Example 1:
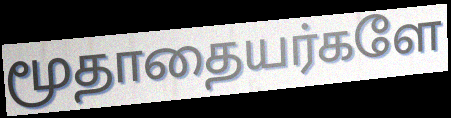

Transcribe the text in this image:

மூதாதையர்களே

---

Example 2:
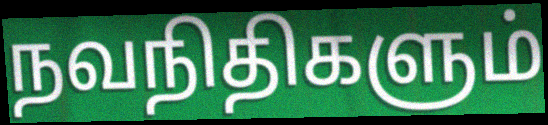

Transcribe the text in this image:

நவநிதிகளும்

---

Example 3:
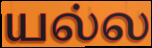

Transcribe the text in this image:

யல்ல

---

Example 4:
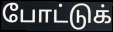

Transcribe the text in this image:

போட்டுக்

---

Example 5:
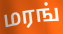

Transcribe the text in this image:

மரங்